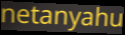
netanyahu